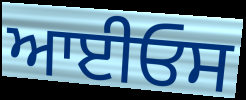
ਆਈਓਸ